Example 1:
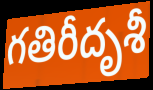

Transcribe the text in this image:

గతిరీదృశీ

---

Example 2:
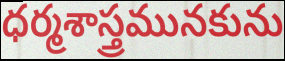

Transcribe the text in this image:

ధర్మశాస్త్రమునకును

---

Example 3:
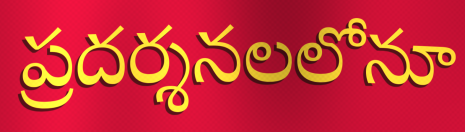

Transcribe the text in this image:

ప్రదర్శనలలోనూ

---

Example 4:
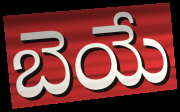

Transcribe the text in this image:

బెయే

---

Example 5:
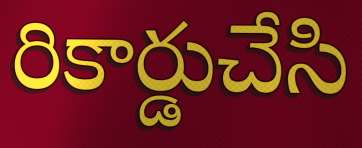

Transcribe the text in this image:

రికార్డుచేసి